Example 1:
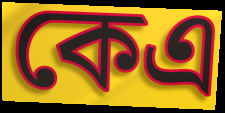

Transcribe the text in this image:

কেএ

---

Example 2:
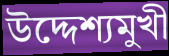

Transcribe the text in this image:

উদ্দেশ্যমুখী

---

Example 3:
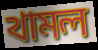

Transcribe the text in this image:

থামল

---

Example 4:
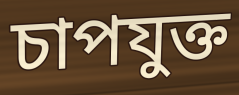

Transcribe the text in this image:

চাপযুক্ত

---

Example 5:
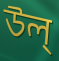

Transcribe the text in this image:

উল্